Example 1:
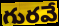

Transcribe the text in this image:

గురవే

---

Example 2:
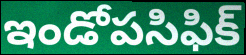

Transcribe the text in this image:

ఇండోపసిఫిక్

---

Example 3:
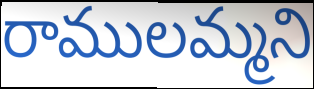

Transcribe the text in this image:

రాములమ్మని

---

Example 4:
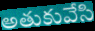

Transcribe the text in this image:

అతుకువేసి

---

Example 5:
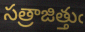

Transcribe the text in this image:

సత్రాజిత్తుఁ